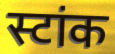
स्टांक